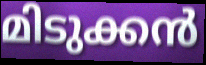
മിടുക്കൻ